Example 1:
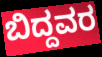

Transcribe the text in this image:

ಬಿದ್ದವರ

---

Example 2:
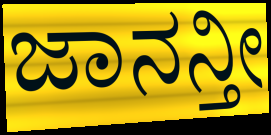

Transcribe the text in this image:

ಜಾನನ್ತೀ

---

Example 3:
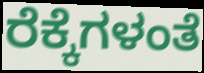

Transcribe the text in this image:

ರೆಕ್ಕೆಗಳಂತೆ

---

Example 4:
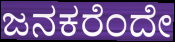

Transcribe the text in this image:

ಜನಕರೆಂದೇ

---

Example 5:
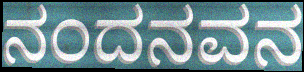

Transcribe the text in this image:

ನಂದನವನ